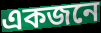
একজনে